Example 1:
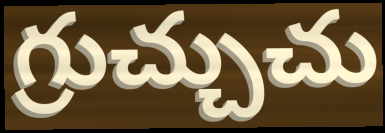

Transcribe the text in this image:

గ్రుచ్చుచు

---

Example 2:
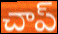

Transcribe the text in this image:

చాప్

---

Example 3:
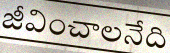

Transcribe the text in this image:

జీవించాలనేది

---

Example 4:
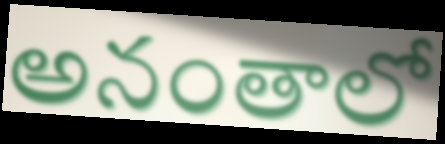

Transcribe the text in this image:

అనంతాలో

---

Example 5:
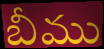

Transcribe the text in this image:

బీము